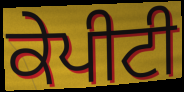
ਕੇਪੀਟੀ